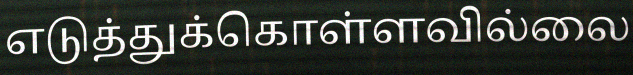
எடுத்துக்கொள்ளவில்லை